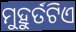
ମୁହୁର୍ତଟିଏ